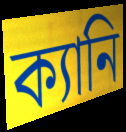
ক্যানি